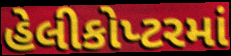
હેલીકોપ્ટરમાં